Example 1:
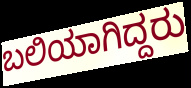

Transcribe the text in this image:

ಬಲಿಯಾಗಿದ್ದರು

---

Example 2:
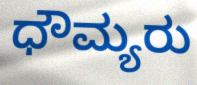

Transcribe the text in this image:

ಧೌಮ್ಯರು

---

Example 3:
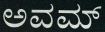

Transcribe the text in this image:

ಅವಮ್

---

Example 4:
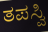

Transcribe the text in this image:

ತಪಸ್ವಿ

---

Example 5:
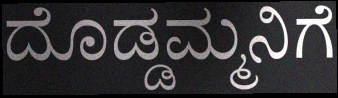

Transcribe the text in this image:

ದೊಡ್ಡಮ್ಮನಿಗೆ